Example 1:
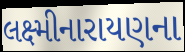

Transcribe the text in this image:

લક્ષ્મીનારાયણના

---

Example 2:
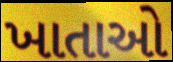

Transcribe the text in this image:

ખાતાઓ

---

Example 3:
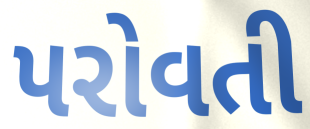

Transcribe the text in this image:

પરોવતી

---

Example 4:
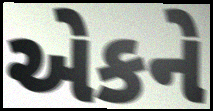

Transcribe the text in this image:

એકને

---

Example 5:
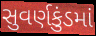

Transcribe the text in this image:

સુવર્ણકુંડમાં